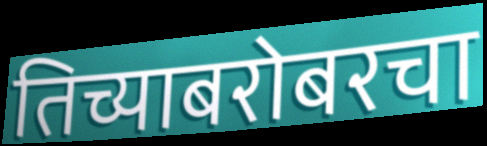
तिच्याबरोबरचा